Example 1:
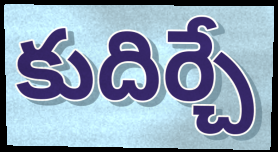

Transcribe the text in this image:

కుదిర్చే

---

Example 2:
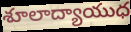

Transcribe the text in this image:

శూలాద్యాయుధ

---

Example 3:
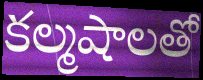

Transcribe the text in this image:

కల్మషాలతో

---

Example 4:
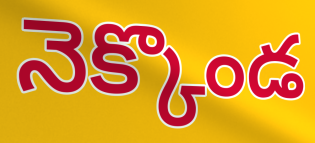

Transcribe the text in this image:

నెక్కొండ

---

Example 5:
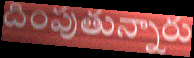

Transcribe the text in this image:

దింపుతున్నారు